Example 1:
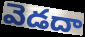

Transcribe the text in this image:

వెడదా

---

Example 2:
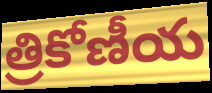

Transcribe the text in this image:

త్రికోణీయ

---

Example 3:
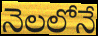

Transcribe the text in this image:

నెలలోనే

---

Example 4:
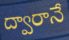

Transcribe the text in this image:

ద్వారానే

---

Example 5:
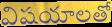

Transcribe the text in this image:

విషయాలతో